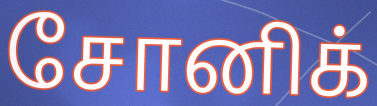
சோனிக்